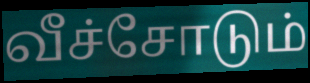
வீச்சோடும்